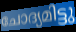
ചോദ്യമിട്ടു